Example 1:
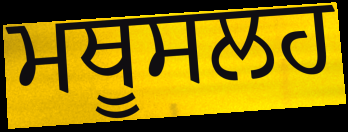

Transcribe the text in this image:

ਮਥੂਸਲਹ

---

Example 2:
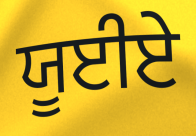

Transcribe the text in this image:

ਯੂਈਏ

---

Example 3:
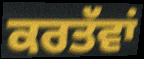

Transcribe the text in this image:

ਕਰਤੱਵਾਂ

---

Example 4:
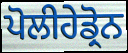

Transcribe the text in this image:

ਪੋਲੀਹੇਡ੍ਰੋਨ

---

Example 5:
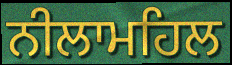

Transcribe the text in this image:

ਨੀਲਾਮਹਿਲ